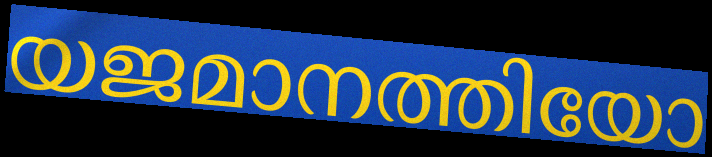
യജമാനത്തിയോ